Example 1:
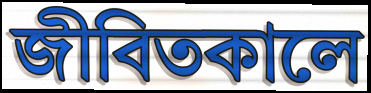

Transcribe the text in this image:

জীবিতকালে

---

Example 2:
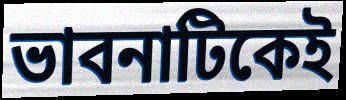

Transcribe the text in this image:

ভাবনাটিকেই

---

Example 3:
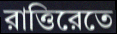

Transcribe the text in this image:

রাত্তিরেতে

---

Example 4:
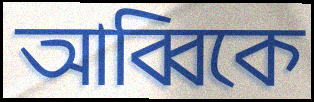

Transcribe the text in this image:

আব্বিকে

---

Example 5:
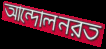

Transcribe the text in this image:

আন্দোলনরত